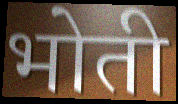
भोती